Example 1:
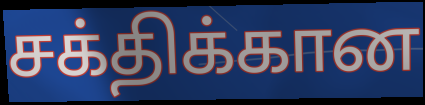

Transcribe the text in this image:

சக்திக்கான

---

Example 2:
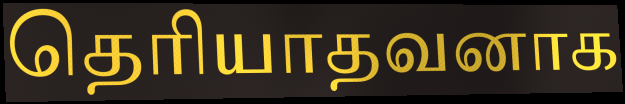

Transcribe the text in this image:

தெரியாதவனாக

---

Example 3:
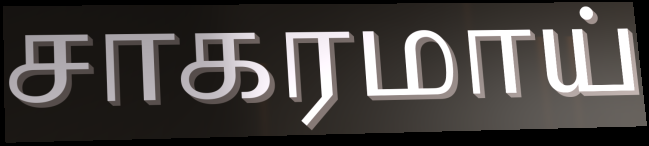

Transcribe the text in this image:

சாகரமாய்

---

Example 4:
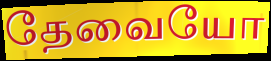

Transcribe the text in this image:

தேவையோ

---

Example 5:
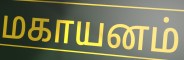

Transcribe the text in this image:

மகாயனம்